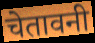
चेतावनी